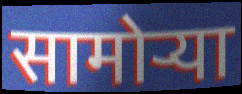
सामोऱ्या